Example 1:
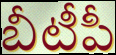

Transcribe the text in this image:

బీటీపీ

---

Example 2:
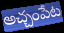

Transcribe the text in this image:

అచ్చంపేట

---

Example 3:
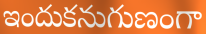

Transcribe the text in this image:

ఇందుకనుగుణంగా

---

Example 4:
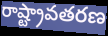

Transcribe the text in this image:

రాష్ట్రావతరణ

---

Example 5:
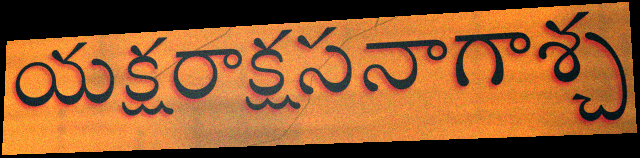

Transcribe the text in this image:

యక్షరాక్షసనాగాశ్చ